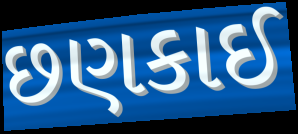
છણકાઈ